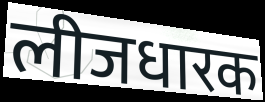
लीजधारक